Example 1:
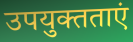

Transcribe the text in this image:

उपयुक्तताएं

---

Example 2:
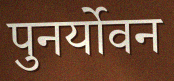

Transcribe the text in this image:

पुनर्योवन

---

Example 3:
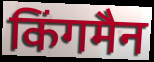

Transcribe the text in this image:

किंगमैन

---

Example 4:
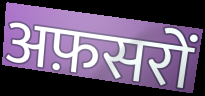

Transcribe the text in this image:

अफ़सरों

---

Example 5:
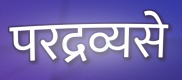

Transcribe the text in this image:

परद्रव्यसे